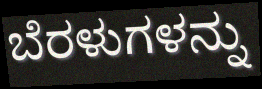
ಬೆರಳುಗಳನ್ನು